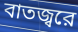
বাতজ্বরে